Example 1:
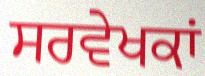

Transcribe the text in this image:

ਸਰਵੇਖਕਾਂ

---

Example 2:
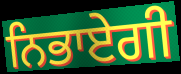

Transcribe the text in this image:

ਨਿਭਾਏਗੀ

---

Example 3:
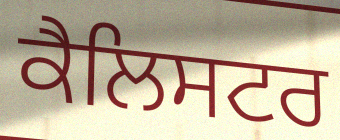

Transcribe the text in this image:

ਕੈਲਿਸਟਰ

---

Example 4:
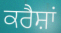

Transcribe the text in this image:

ਕਰੈਸ਼ਾਂ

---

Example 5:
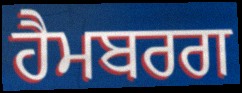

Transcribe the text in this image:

ਹੈਮਬਰਗ